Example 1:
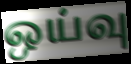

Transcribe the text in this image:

ஒய்வு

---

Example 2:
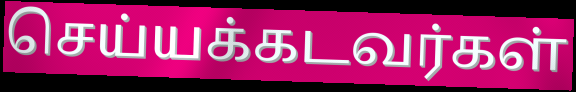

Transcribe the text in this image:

செய்யக்கடவர்கள்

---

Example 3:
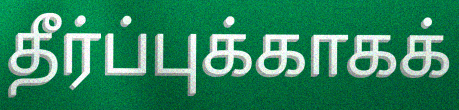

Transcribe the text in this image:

தீர்ப்புக்காகக்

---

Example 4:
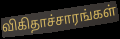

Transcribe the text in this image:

விகிதாச்சாரங்கள்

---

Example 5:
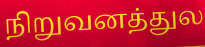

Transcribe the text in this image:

நிறுவனத்துல